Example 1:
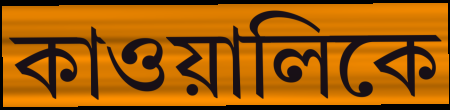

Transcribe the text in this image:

কাওয়ালিকে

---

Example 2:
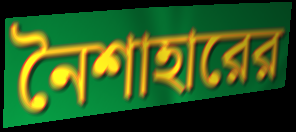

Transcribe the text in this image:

নৈশাহারের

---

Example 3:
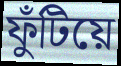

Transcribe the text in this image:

ফুঁটিয়ে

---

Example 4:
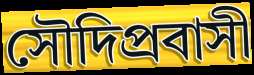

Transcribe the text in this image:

সৌদিপ্রবাসী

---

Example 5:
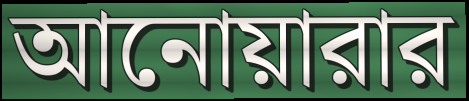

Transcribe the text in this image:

আনোয়ারার